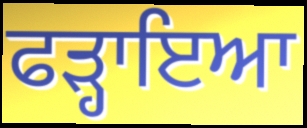
ਫੜ੍ਹਾਇਆ